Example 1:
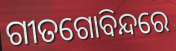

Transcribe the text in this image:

ଗୀତଗୋବିନ୍ଦରେ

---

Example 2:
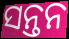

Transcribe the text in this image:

ସନ୍ତନ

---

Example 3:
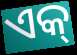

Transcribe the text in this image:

ଏକ୍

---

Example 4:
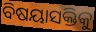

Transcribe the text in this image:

ବିଷୟାସକ୍ତିକୁ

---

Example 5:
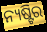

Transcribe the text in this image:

ନ୍ୟଷ୍ଟିର